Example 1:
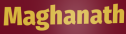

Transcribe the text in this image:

Maghanath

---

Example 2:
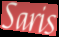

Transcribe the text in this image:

Saris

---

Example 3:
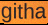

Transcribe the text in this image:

githa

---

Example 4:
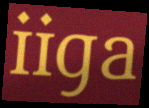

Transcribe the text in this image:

iiga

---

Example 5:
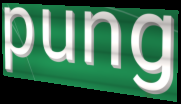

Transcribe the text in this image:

pung